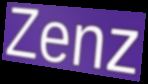
Zenz